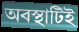
অবস্থাটিই